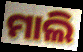
ମାଲି